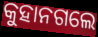
କୁହାନଗଲେ